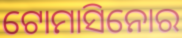
ଟୋମାସିନୋର